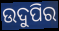
ଉଦୁପିର